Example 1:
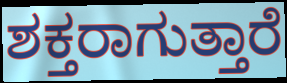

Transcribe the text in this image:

ಶಕ್ತರಾಗುತ್ತಾರೆ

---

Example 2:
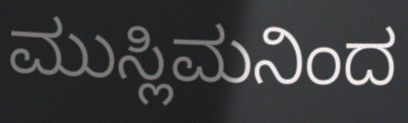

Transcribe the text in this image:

ಮುಸ್ಲಿಮನಿಂದ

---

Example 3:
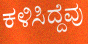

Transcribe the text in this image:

ಕಳಿಸಿದ್ದೆವು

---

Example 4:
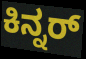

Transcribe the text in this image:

ಕಿನ್ನರ್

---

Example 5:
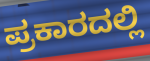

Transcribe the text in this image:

ಪ್ರಕಾರದಲ್ಲಿ